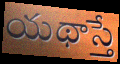
యథాస్తే